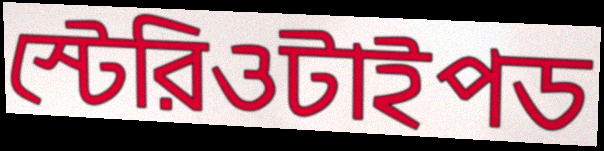
স্টেরিওটাইপড